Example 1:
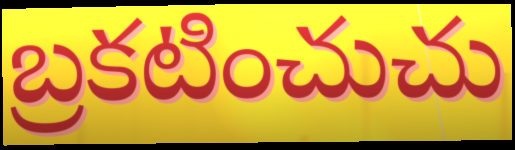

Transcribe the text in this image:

బ్రకటించుచు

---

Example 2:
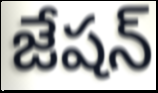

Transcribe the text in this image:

జేషన్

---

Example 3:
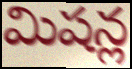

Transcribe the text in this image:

మిషన్ల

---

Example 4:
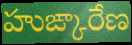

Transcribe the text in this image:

హుఙ్కారేణ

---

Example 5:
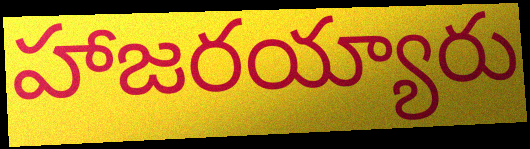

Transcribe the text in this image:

హాజరయ్యారు